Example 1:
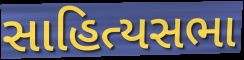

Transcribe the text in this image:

સાહિત્યસભા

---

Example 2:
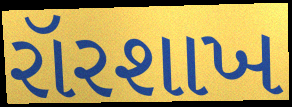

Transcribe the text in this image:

રૉરશાખ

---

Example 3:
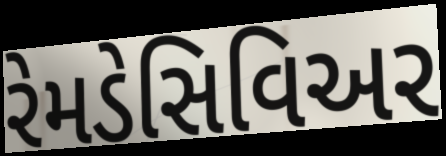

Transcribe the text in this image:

રેમડેસિવિઅર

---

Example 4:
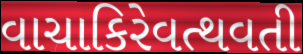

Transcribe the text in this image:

વાચાકિરેવત્થવતી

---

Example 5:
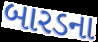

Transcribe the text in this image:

બારડના